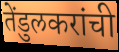
तेंडुलकरांची